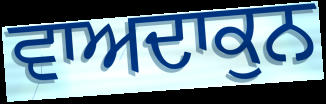
ਵਾਅਦਾਕੁਨ